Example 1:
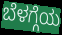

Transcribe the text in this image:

ಬೆಳಗ್ಗೆಯ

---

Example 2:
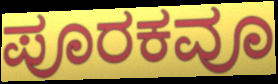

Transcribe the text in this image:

ಪೂರಕವೂ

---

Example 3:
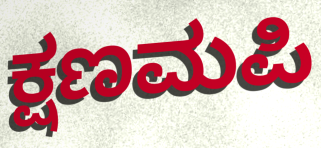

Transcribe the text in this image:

ಕ್ಷಣಮಪಿ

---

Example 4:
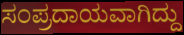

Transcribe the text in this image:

ಸಂಪ್ರದಾಯವಾಗಿದ್ದು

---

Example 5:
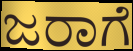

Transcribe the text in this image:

ಜರಾಗೆ